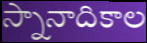
స్నానాదికాల